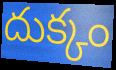
దుక్కం